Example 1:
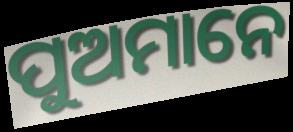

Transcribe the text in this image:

ପୁଅମାନେ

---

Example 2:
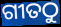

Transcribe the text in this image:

ଗୀତଠୁ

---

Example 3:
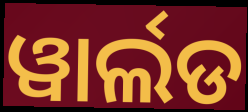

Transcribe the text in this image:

ୱାର୍ଲଡ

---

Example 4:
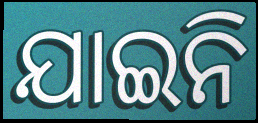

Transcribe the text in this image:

ଯାଇନି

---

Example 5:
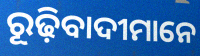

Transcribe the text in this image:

ରୂଢ଼ିବାଦୀମାନେ